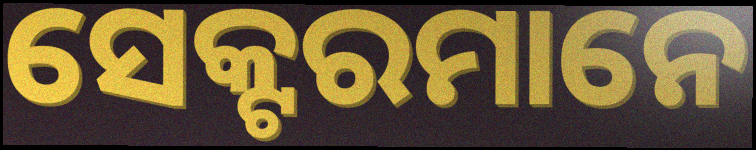
ସେକ୍ଟରମାନେ